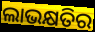
ଲାଭକ୍ଷତିର